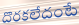
దొరకలేదంటే